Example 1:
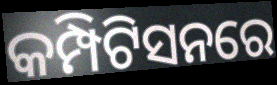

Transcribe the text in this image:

କମ୍ପିଟିସନରେ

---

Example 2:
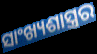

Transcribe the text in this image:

ସାଂଖ୍ୟଶାସ୍ତ୍ରର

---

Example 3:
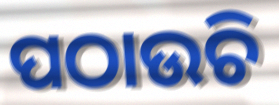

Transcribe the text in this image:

ପଠାଉଚି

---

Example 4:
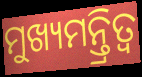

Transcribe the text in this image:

ମୁଖ୍ୟମନ୍ତ୍ରିତ୍ବ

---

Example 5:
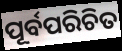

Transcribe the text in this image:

ପୂର୍ବପରିଚିତ